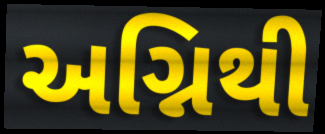
અગ્નિથી